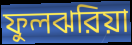
ফুলঝরিয়া